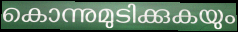
കൊന്നുമുടിക്കുകയും